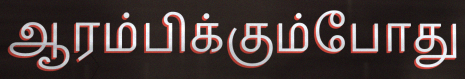
ஆரம்பிக்கும்போது